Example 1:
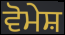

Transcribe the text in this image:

ਵੋਮੇਸ਼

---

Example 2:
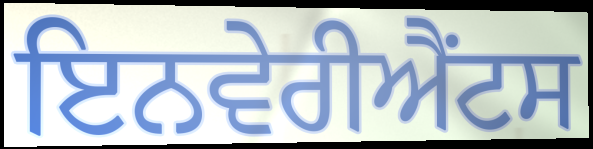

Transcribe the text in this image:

ਇਨਵੇਰੀਐਂਟਸ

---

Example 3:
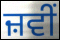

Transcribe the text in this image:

ਜ਼ਵੀਂ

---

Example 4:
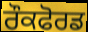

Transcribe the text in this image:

ਰੌਕਫੋਰਡ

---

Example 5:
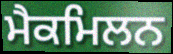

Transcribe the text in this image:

ਮੈਕਮਿਲਨ